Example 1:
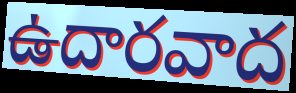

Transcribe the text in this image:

ఉదారవాద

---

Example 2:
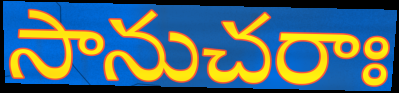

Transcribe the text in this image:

సానుచరాః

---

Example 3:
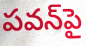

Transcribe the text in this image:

పవన్‌పై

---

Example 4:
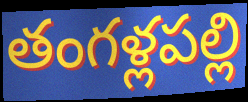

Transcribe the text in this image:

తంగళ్లపల్లి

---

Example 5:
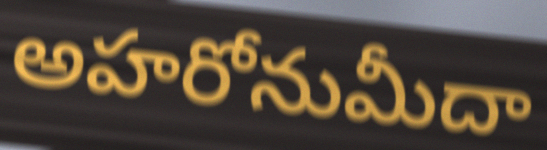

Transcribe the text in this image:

అహరోనుమీదా